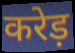
करेड़